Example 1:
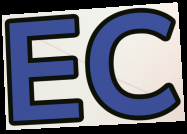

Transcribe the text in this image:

EC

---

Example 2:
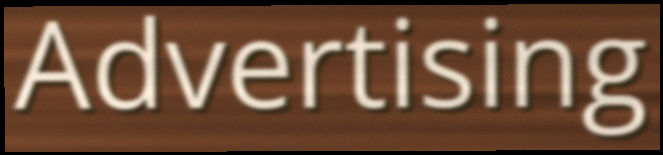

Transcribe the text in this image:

Advertising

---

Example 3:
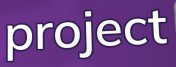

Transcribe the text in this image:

project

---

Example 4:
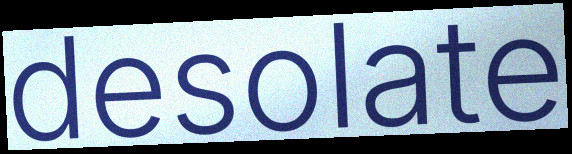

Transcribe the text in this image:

desolate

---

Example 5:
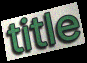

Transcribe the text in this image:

title